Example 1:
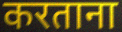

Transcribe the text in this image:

करताना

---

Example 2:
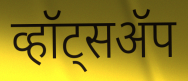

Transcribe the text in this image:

व्हॉट्सॲप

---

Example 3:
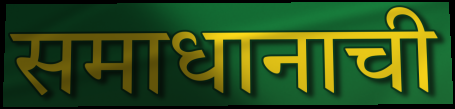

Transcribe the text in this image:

समाधानाची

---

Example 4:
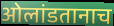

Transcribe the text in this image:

ओलांडतानाच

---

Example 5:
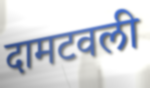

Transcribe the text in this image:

दामटवली